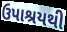
ઉપાશ્રયથી